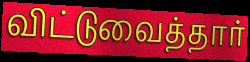
விட்டுவைத்தார்